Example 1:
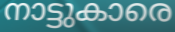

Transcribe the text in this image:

നാട്ടുകാരെ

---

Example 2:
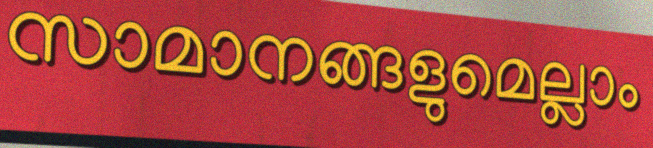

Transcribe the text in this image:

സാമാനങ്ങളുമെല്ലാം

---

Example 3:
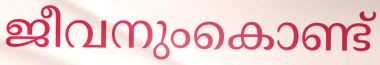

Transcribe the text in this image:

ജീവനുംകൊണ്ട്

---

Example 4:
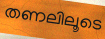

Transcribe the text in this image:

തണലിലൂടെ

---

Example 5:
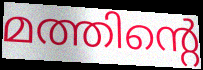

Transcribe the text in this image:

മത്തിന്റെ